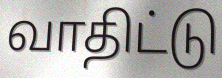
வாதிட்டு